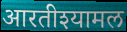
आरतीश्यामल